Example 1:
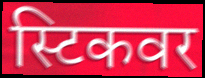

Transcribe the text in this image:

स्टिकवर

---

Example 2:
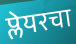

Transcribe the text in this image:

प्लेयरचा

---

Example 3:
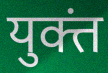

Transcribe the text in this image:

युक्तं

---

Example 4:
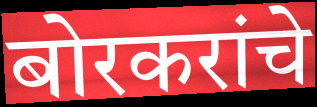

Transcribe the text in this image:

बोरकरांचे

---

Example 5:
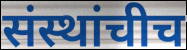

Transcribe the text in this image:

संस्थांचीच